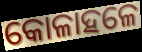
କୋଳାହଳେ